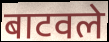
बाटवले